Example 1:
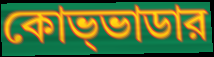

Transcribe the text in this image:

কোভ্ভাডার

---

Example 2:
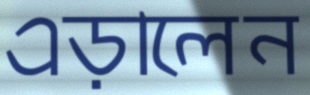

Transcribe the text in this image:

এড়ালেন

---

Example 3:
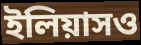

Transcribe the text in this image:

ইলিয়াসও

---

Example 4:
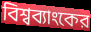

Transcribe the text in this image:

বিশ্বব্যাংকের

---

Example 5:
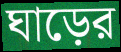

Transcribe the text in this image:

ঘাড়ের